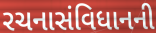
રચનાસંવિધાનની